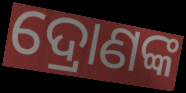
ଦ୍ରୋଣଙ୍କ